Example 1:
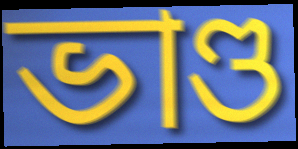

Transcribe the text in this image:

ভাণ্ড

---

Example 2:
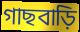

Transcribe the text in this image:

গাছবাড়ি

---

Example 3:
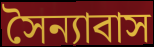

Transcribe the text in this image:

সৈন্যাবাস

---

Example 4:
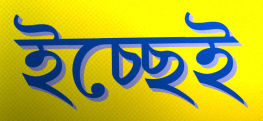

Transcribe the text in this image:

ইচ্ছেই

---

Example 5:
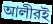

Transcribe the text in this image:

আলীরই